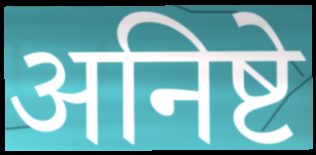
अनिष्टे